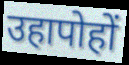
उहापोहों